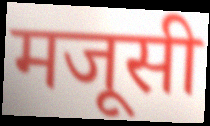
मजूसी